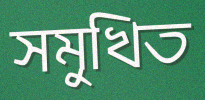
সমুখিত